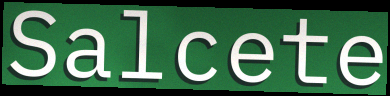
Salcete